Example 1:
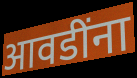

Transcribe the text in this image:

आवडींना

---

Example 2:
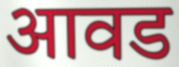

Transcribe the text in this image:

आवड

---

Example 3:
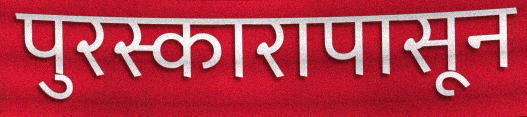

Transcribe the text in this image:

पुरस्कारापासून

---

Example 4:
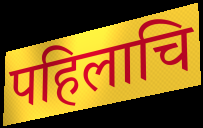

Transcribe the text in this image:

पहिलाचि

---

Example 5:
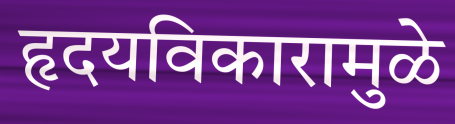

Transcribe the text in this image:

हृदयविकारामुळे